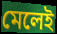
মেলেই